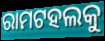
ରାମଟହଲକୁ